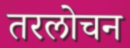
तरलोचन